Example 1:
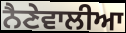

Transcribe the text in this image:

ਨੈਣੇਵਾਲੀਆ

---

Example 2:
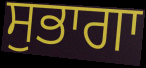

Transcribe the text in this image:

ਸੁਭਾਗਾ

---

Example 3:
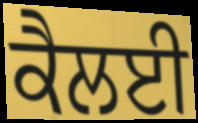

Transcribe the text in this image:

ਕੈਲਈ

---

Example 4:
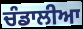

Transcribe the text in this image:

ਚੰਡਾਲੀਆ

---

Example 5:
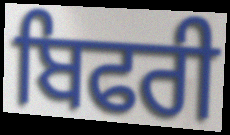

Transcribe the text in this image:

ਬਿਫਰੀ